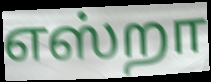
எஸ்றா